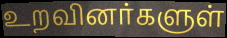
உறவினர்களுள்